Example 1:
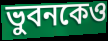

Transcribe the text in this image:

ভুবনকেও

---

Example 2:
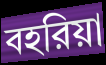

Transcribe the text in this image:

বহরিয়া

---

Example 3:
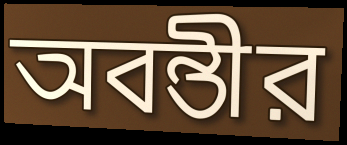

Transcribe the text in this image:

অবন্তীর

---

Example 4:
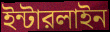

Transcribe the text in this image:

ইন্টারলাইন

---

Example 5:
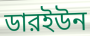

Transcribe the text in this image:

ডারইউন